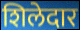
शिलेदार